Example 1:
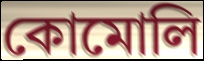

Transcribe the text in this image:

কোমোলি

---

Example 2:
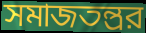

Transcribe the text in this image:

সমাজতন্ত্রর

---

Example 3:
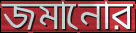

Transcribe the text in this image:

জমানোর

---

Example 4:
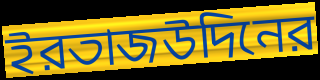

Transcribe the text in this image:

ইরতাজউদিনের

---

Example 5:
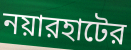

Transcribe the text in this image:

নয়ারহাটের